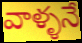
వాళ్ళనే